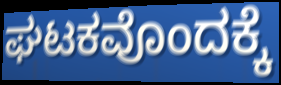
ಘಟಕವೊಂದಕ್ಕೆ